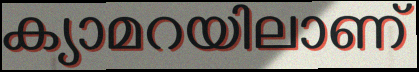
ക്യാമറയിലാണ്